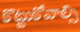
కొట్టుకోవాల్సి